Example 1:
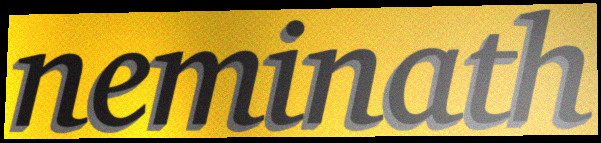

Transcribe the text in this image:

neminath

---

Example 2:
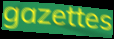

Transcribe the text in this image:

gazettes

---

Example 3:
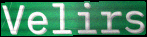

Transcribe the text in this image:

Velirs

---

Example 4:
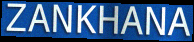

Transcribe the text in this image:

ZANKHANA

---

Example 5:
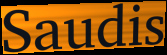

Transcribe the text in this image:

Saudis